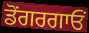
ਡੋਂਗਰਗਾਓਂ